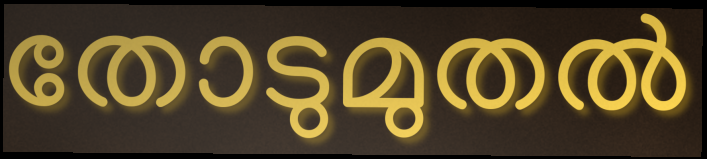
തോടുമുതൽ